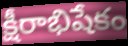
క్షీరాభిషేకం